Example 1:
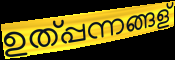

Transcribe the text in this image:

ഉത്പ്പന്നങ്ങള്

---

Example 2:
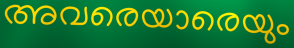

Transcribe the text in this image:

അവരെയാരെയും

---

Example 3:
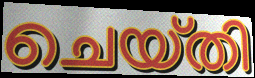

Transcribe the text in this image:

ചെയ്‌തി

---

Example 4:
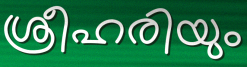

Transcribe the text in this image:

ശ്രീഹരിയും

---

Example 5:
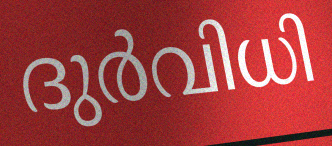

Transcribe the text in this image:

ദുർവിധി